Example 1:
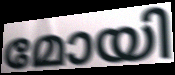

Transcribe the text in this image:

മോയി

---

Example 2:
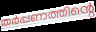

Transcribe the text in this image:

തർപ്പണത്തിന്റെ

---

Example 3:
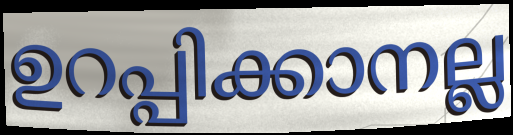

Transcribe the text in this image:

ഉറപ്പിക്കാനല്ല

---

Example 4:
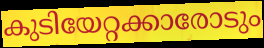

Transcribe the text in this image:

കുടിയേറ്റക്കാരോടും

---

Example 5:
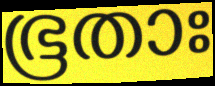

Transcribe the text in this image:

ഭൂതാഃ